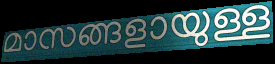
മാസങ്ങളായുള്ള